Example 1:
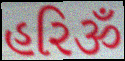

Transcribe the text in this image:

હરિૐ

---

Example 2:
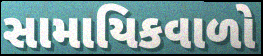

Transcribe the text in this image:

સામાયિકવાળો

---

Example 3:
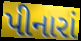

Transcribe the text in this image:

પીનારાં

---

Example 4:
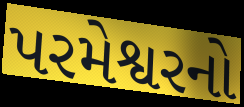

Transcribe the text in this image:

પરમેશ્વરનો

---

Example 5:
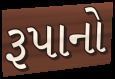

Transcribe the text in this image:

રૂપાનો